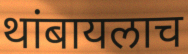
थांबायलाच